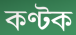
কণ্টক